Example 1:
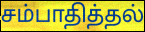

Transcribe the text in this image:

சம்பாதித்தல்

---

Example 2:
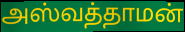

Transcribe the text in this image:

அஸ்வத்தாமன்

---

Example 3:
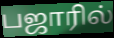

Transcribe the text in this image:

பஜாரில்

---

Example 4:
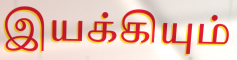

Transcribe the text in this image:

இயக்கியும்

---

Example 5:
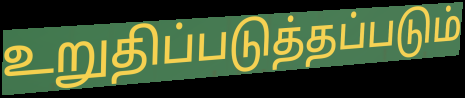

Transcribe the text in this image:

உறுதிப்படுத்தப்படும்